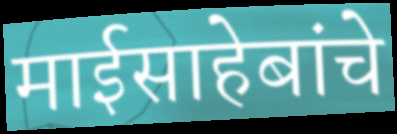
माईसाहेबांचे